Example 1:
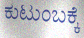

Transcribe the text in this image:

ಕುಟುಂಬಕ್ಕೆ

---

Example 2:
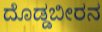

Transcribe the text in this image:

ದೊಡ್ಡಬೀರನ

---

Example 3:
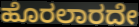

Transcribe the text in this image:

ಹೊರಲಾರದೇ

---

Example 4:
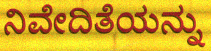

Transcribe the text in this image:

ನಿವೇದಿತೆಯನ್ನು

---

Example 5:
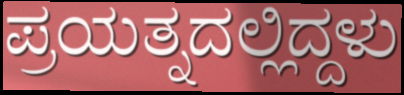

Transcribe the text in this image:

ಪ್ರಯತ್ನದಲ್ಲಿದ್ದಳು